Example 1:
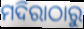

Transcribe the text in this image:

ମଦିରାଠାରୁ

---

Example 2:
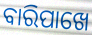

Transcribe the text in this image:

ବାରିପାଖେ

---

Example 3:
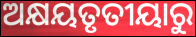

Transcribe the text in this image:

ଅକ୍ଷୟତୃତୀୟାରୁ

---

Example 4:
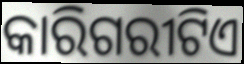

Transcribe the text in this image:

କାରିଗରୀଟିଏ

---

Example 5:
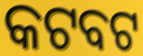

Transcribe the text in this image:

କଟବଟ